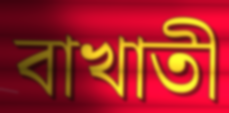
বাখাতী